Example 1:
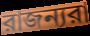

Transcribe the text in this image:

রাজন্যরা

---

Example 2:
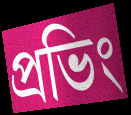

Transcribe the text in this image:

প্রভিং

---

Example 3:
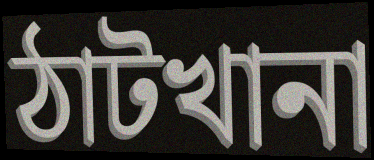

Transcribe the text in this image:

ঠাটখানা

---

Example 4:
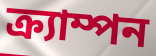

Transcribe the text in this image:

ক্র্যাম্পন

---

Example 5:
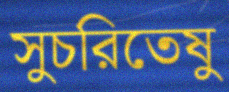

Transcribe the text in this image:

সুচরিতেষু